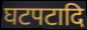
घटपटादि